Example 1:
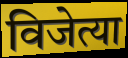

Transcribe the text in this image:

विजेत्या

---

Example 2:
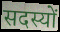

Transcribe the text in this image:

सदस्यों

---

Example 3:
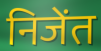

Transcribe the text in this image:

निजेंत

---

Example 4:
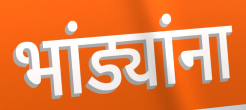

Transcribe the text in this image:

भांड्यांना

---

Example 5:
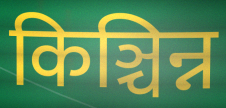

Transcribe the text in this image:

किञ्चिन्न